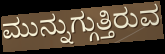
ಮುನ್ನುಗ್ಗುತ್ತಿರುವ